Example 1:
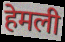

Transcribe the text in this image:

हेमली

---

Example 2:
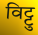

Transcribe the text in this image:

विट्टु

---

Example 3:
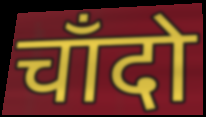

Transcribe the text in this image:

चाँदो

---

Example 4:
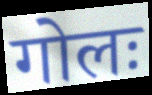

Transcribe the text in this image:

गोलः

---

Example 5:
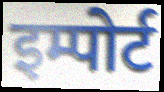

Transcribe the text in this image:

इम्पोर्ट